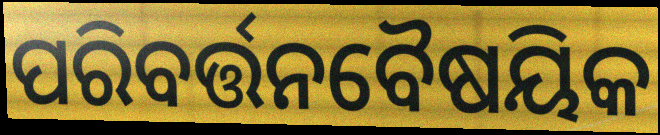
ପରିବର୍ତ୍ତନବୈଷୟିକ